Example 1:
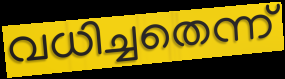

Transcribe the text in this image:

വധിച്ചതെന്ന്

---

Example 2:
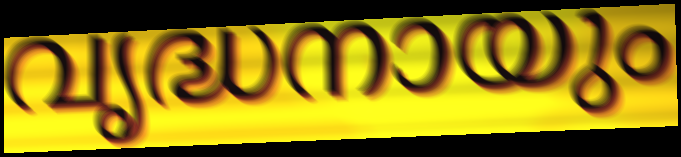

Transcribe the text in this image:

വൃദ്ധനായും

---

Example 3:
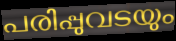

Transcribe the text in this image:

പരിപ്പുവടയും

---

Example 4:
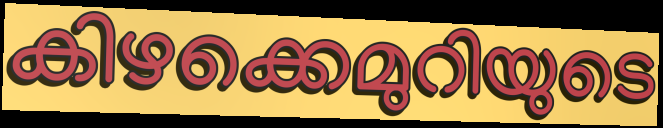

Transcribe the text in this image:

കിഴക്കെമുറിയുടെ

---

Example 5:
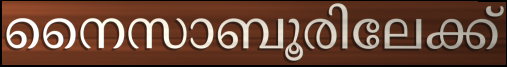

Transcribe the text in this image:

നൈസാബൂരിലേക്ക്